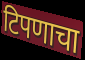
टिपणाचा